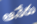
ఆనేరు